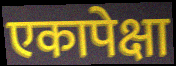
एकापेक्षा